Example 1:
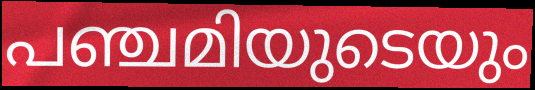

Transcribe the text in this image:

പഞ്ചമിയുടെയും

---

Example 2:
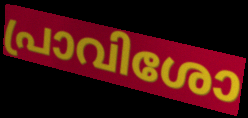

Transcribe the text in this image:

പ്രാവിശോ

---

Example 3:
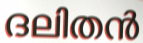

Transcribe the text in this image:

ദലിതൻ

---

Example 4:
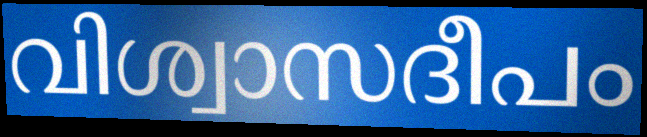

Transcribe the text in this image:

വിശ്വാസദീപം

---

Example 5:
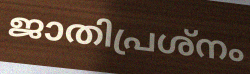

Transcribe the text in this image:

ജാതിപ്രശ്നം